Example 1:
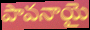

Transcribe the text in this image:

పావనాయై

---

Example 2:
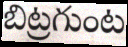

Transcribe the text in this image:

బిట్రగుంట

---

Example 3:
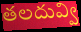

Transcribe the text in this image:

తలదువ్వి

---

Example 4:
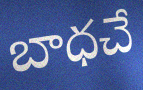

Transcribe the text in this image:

బాధచే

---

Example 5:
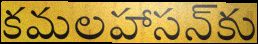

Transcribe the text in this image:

కమలహాసన్‌కు